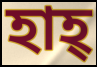
হাহ্